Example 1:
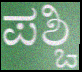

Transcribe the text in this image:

ಪಶ್ಚಿ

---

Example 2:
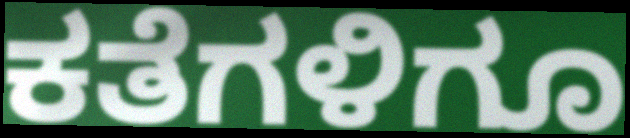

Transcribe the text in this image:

ಕತೆಗಳಿಗೂ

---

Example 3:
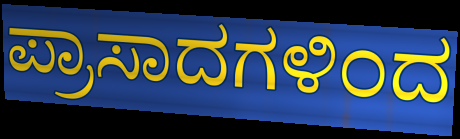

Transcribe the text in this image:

ಪ್ರಾಸಾದಗಳಿಂದ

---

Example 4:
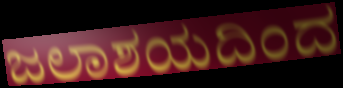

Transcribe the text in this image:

ಜಲಾಶಯದಿಂದ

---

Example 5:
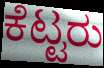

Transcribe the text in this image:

ಕೆಟ್ಟರು